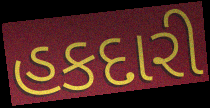
હકદારી